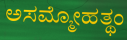
ಅಸಮ್ಮೋಹತ್ಥಂ